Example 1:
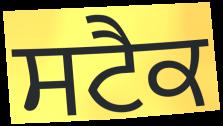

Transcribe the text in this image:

ਸਟੈਕ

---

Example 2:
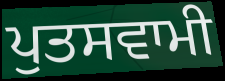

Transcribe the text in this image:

ਪੁਤਸਵਾਮੀ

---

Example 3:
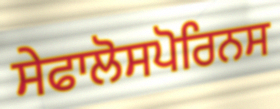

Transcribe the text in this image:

ਸੇਫਾਲੋਸਪੋਰਿਨਸ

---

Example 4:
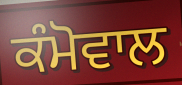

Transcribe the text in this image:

ਕੰਮੋਵਾਲ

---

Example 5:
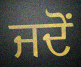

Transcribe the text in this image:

ਜਦੋਂ